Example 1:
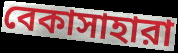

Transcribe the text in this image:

বেকাসাহারা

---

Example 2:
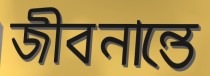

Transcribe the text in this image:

জীবনান্তে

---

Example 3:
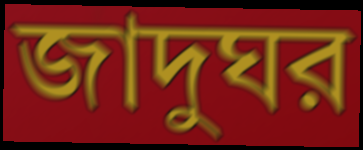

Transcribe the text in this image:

জাদুঘর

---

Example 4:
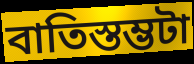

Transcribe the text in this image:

বাতিস্তম্ভটা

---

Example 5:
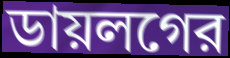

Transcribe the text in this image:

ডায়লগের